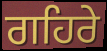
ਗਹਿਰੇ